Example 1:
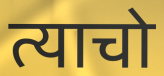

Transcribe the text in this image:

त्याचो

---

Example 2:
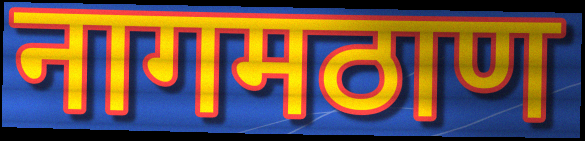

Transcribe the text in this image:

नागमठाण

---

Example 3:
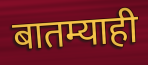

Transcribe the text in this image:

बातम्याही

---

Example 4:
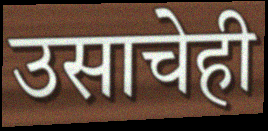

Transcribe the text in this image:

उसाचेही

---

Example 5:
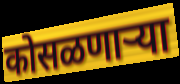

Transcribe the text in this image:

कोसळणाऱ्या